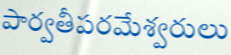
పార్వతీపరమేశ్వరులు